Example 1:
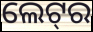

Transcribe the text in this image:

ଲେଟ୍‌ର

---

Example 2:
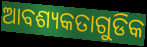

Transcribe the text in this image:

ଆବଶ୍ୟକତାଗୁଡିକ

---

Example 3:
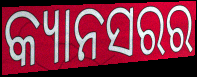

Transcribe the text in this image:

କ୍ୟାନସରର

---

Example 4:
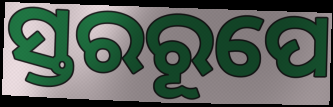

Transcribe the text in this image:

ସ୍ତରରୂପେ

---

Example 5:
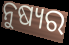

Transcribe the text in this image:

ନୁଷ୍ୟର